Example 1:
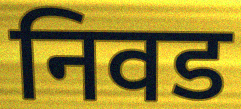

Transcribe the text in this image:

निवड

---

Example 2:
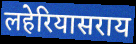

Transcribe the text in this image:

लहेरियासराय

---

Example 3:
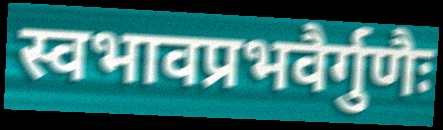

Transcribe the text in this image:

स्वभावप्रभवैर्गुणैः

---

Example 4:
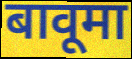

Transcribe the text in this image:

बावूमा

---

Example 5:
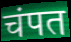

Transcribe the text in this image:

चंपत